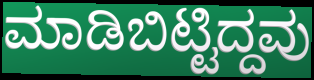
ಮಾಡಿಬಿಟ್ಟಿದ್ದವು